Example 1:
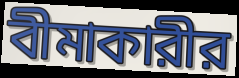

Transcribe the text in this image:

বীমাকারীর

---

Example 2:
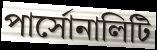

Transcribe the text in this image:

পার্সোনালিটি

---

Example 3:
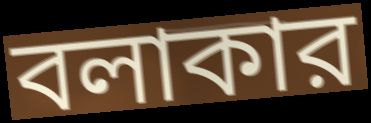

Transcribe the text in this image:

বলাকার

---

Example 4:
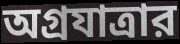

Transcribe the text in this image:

অগ্রযাত্রার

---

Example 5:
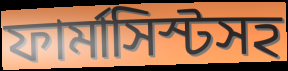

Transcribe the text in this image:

ফার্মাসিস্টসহ